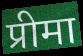
प्रीमा